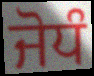
ਜੋਧੰ